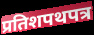
प्रतिशपथपत्र